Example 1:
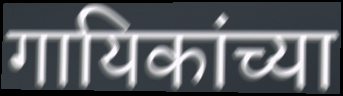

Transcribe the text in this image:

गायिकांच्या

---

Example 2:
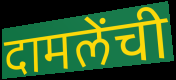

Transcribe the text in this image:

दामलेंची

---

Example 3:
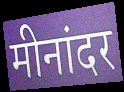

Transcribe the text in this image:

मीनांदर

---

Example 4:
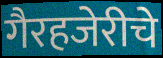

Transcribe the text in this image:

गैरहजेरीचे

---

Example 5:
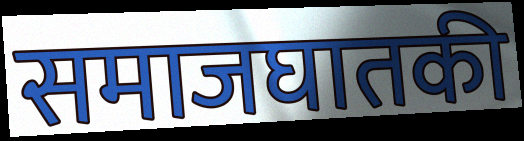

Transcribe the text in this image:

समाजघातकी